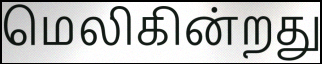
மெலிகின்றது